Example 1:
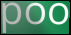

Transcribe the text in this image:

poo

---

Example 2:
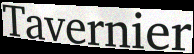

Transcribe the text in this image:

Tavernier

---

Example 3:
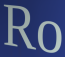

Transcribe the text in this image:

Ro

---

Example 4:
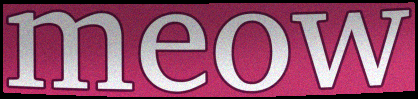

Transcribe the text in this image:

meow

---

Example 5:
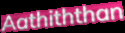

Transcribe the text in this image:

Aathiththan